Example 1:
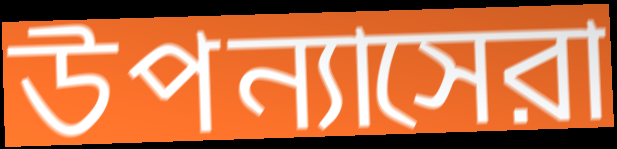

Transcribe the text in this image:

উপন্যাসেরা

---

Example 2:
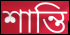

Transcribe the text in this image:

শান্তি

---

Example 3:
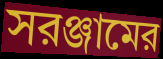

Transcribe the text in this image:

সরঞ্জামের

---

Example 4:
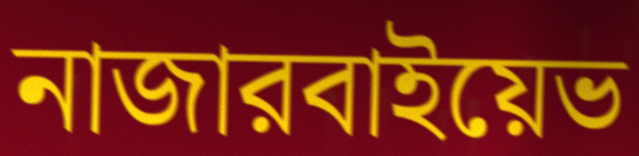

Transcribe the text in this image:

নাজারবাইয়েভ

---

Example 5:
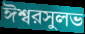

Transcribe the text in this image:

ঈশ্বরসুলভ